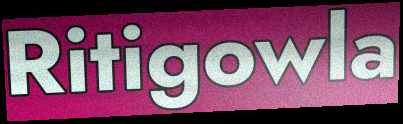
Ritigowla